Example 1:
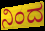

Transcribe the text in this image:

ನಿಂದ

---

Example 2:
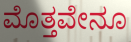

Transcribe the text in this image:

ಮೊತ್ತವೇನೂ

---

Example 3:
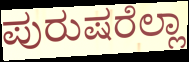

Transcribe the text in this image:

ಪುರುಷರೆಲ್ಲಾ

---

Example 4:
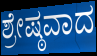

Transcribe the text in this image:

ಶ್ರೇಷ್ಠವಾದ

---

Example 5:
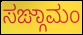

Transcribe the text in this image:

ಸಙ್ಗಾಮಂ